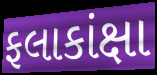
ફલાકાંક્ષા